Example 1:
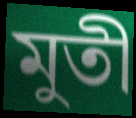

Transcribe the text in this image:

মুতী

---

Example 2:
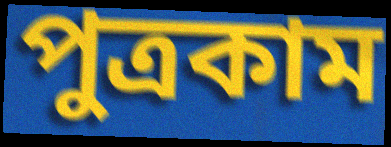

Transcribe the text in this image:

পুত্রকাম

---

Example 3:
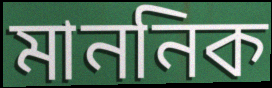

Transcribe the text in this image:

মাননিক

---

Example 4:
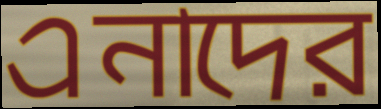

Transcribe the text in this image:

এনাদের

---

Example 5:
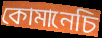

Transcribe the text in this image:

কোমানেচি